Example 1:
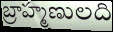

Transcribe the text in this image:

బ్రాహ్మణులది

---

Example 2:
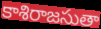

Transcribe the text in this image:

కాశిరాజసుతా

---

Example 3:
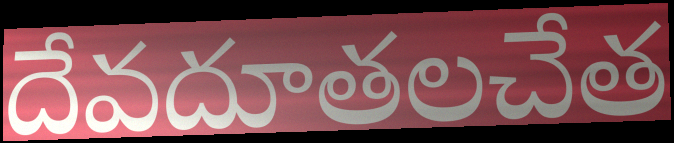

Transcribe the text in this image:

దేవదూతలచేత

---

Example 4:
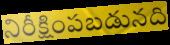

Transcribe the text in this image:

నిరీక్షింపబడునది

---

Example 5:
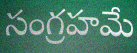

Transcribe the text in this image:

సంగ్రహమే